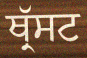
ਥ੍ਰੱਸਟ